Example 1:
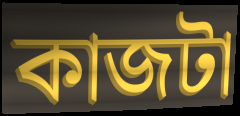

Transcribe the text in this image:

কাজটা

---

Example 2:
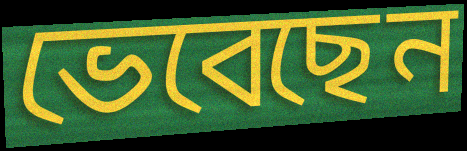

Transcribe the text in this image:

ভেবেছেন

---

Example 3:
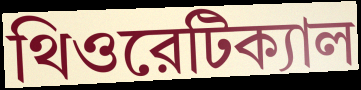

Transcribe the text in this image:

থিওরেটিক্যাল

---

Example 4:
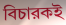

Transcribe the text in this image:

বিচারকই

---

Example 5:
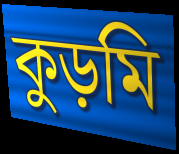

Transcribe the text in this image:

কুড়মি